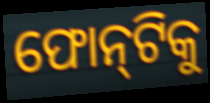
ଫୋନ୍‌ଟିକୁ